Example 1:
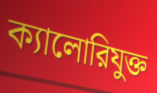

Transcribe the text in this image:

ক্যালোরিযুক্ত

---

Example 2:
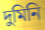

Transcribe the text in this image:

দুমিনি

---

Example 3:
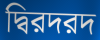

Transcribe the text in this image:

দ্বিরদরদ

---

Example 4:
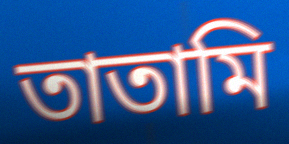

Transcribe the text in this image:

তাতামি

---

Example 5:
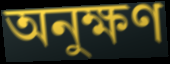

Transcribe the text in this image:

অনুক্ষণ